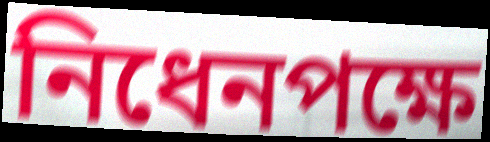
নিধেনপক্ষে